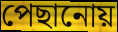
পেছানোয়